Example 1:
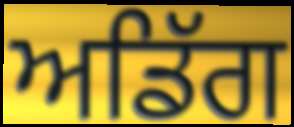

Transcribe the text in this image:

ਅਡਿੱਗ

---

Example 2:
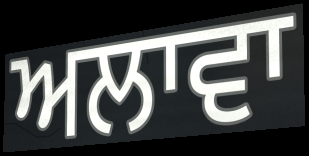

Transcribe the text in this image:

ਅਲਾਵਾ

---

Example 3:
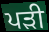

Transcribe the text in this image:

ਪਡ਼ੀ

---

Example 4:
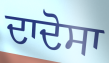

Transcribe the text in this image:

ਦਾਦੋਸਾ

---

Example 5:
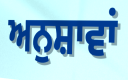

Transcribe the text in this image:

ਅਨੁਸ਼ਾਵਾਂ